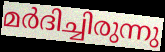
മർദിച്ചിരുന്നു